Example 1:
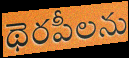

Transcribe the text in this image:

థెరపీలను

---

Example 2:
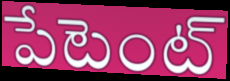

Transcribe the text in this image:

పేటెంట్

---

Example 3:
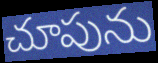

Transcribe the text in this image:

చూపును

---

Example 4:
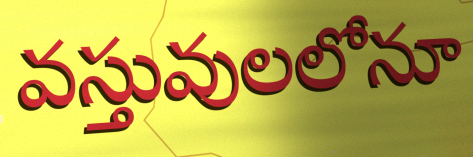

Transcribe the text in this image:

వస్తువులలోనూ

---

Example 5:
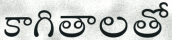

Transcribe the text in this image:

కాగితాలతో